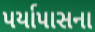
પર્યાપાસના